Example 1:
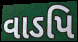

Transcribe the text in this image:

વાઽપિ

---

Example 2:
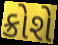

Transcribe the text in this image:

ક્રોશે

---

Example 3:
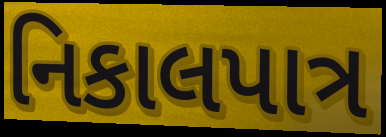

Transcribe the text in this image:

નિકાલપાત્ર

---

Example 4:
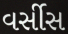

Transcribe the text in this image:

વર્સીસ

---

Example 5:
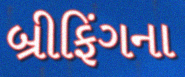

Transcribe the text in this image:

બ્રીફિંગના